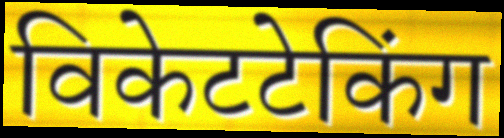
विकेटटेकिंग